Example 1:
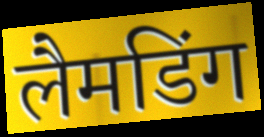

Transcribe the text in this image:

लैमडिंग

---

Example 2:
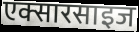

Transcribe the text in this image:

एक्सारसाइज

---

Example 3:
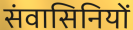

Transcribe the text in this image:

संवासिनियों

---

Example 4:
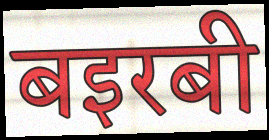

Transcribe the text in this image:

बइरबी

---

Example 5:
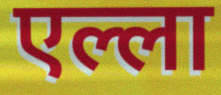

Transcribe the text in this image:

एल्ला